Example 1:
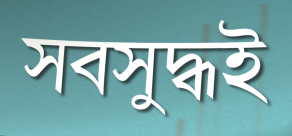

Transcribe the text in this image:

সবসুদ্ধই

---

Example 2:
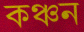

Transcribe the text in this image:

কঞ্চন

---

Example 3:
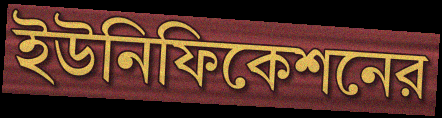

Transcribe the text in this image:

ইউনিফিকেশনের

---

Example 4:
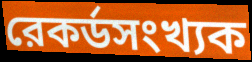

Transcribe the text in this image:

রেকর্ডসংখ্যক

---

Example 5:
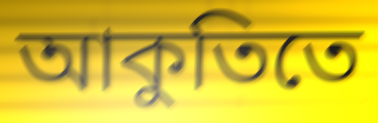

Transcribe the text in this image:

আকুতিতে